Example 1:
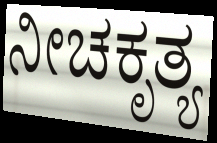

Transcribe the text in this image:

ನೀಚಕೃತ್ಯ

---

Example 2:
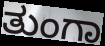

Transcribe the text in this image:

ತುಂಗಾ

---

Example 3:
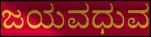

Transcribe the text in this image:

ಜಯವಧುವ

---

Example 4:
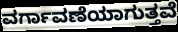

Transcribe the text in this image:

ವರ್ಗಾವಣೆಯಾಗುತ್ತವೆ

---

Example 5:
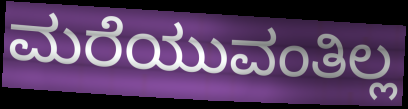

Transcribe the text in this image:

ಮರೆಯುವಂತಿಲ್ಲ